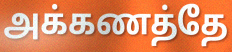
அக்கணத்தே